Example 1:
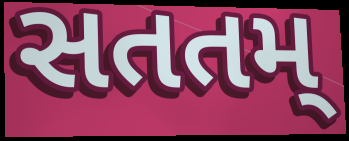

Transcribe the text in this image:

સતતમ્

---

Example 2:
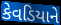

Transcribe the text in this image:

કેવડિયાને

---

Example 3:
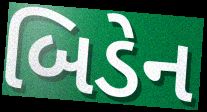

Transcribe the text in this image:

બિડેન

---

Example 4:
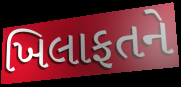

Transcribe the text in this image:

ખિલાફતને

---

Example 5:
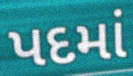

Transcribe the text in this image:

પદમાં